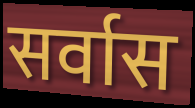
सर्वास